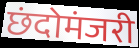
छंदोमंजरी